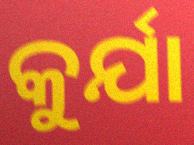
କୁର୍ଯା